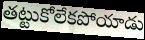
తట్టుకోలేకపోయాడు